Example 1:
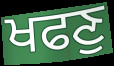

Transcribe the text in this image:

ਖਫਣੁ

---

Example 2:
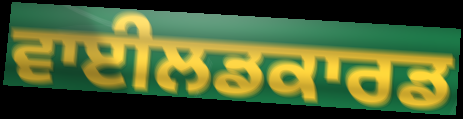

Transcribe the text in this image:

ਵਾਈਲਡਕਾਰਡ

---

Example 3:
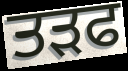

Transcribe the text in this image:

ਤੜਫ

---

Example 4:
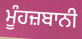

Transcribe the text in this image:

ਮੂੰਹਜ਼ਬਾਨੀ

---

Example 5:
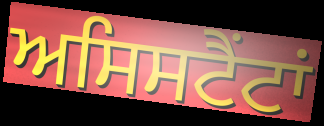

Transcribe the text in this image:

ਅਸਿਸਟੈਂਟਾਂ